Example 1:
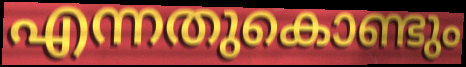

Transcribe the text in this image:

എന്നതുകൊണ്ടും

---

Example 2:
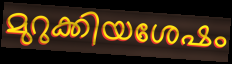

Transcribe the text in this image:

മുറുക്കിയശേഷം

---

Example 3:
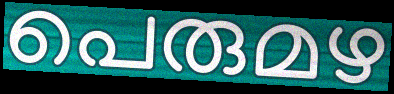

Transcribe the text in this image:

പെരുമഴ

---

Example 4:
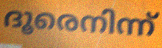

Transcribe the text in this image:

ദൂരെനിന്ന്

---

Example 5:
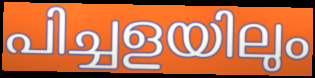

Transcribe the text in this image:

പിച്ചളയിലും